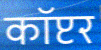
कॉप्टर